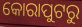
କୋରାପୁଟରୁ